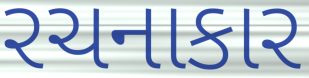
રચનાકાર